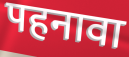
पहनावा